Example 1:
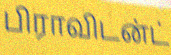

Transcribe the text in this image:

பிராவிடன்ட்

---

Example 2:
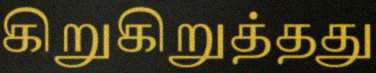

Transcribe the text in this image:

கிறுகிறுத்தது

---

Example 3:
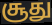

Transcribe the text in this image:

சூது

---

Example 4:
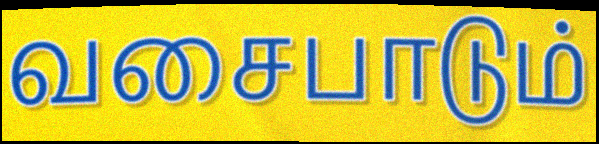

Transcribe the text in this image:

வசைபாடும்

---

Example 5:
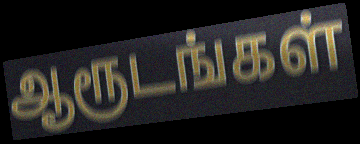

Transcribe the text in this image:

ஆரூடங்கள்